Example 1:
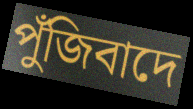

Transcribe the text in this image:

পুঁজিবাদে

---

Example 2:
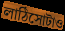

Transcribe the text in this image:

লাঠিসোটাও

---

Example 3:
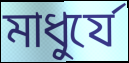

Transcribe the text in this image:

মাধুর্যে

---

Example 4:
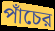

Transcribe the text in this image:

পাঁচের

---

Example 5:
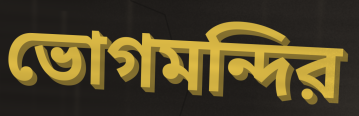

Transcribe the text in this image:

ভোগমন্দির